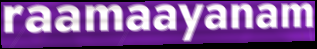
raamaayanam